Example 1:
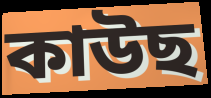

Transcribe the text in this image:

কাউছ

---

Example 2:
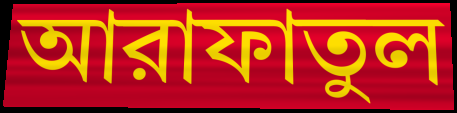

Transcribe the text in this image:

আরাফাতুল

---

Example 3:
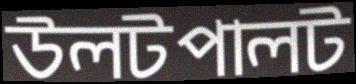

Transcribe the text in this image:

উলটপালট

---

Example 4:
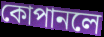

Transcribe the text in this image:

কোপানলে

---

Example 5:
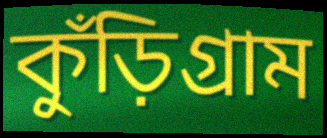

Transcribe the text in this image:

কুঁড়িগ্রাম